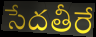
సేదతీరే